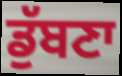
ਡੁੱਬਣਾ